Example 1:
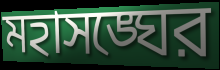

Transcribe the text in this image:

মহাসঙ্ঘের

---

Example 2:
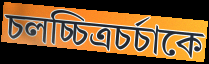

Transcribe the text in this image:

চলচ্চিত্রচর্চাকে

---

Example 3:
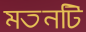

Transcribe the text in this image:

মতনটি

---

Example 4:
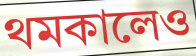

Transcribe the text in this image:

থমকালেও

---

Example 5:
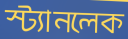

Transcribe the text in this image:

স্ট্যানলেক